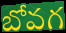
బోవగ